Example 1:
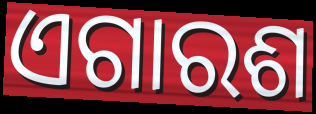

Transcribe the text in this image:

ଏଗାରଶ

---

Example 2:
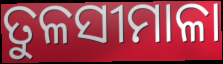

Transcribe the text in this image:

ତୁଳସୀମାଳା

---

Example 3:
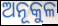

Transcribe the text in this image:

ଅନୂକୁଳ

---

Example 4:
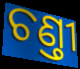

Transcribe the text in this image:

ଚଣ୍ତୀ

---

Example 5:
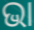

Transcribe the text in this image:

ଭା